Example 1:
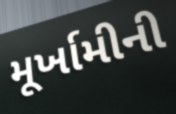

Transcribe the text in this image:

મૂર્ખામીની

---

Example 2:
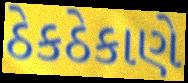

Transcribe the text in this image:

ઠેકઠેકાણે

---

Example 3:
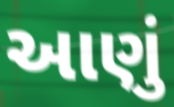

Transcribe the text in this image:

આણું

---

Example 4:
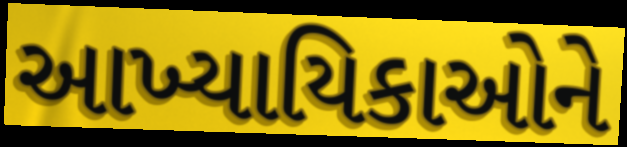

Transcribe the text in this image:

આખ્યાયિકાઓને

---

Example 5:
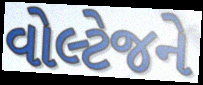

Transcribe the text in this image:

વોલ્ટેજને